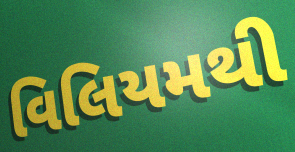
વિલિયમથી